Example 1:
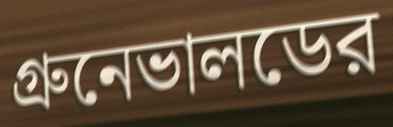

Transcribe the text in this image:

গ্রুনেভালডের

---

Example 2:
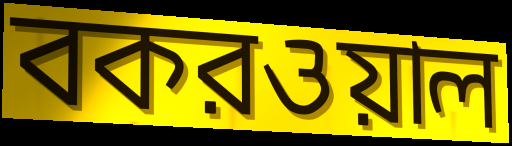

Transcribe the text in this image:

বকরওয়াল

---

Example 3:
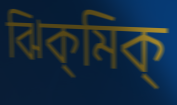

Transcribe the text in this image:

ঝিক্‌মিক্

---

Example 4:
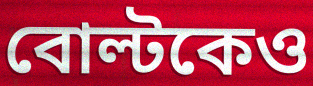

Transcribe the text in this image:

বোল্টকেও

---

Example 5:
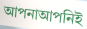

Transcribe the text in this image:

আপনাআপনিই